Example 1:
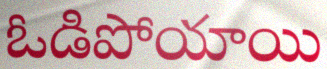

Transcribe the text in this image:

ఓడిపోయాయి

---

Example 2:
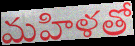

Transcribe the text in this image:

మహిళతో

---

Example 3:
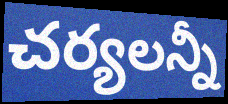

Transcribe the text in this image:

చర్యలన్నీ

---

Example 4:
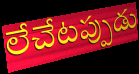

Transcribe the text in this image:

లేచేటప్పుడు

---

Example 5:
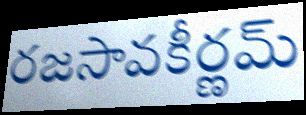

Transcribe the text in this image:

రజసావకీర్ణమ్